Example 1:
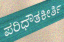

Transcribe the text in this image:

ಪರಿಧೌತಕೀರ್ತಿ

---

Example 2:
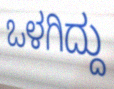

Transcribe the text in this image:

ಒಳಗಿದ್ದು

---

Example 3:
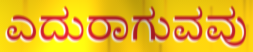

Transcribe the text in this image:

ಎದುರಾಗುವವು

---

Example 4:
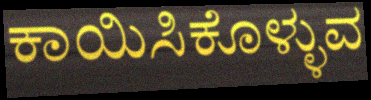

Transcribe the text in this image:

ಕಾಯಿಸಿಕೊಳ್ಳುವ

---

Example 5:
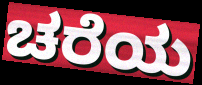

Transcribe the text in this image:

ಚರೆಯ